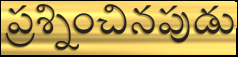
ప్రశ్నించినపుడు